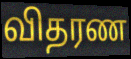
விதரண